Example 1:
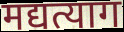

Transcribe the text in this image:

मद्यत्याग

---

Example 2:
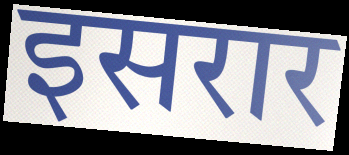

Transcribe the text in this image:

इसरार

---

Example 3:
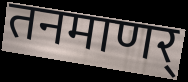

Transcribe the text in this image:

तनमाणर्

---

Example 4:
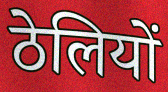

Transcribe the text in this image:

ठेलियों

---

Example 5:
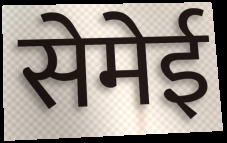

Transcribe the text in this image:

सेमेई